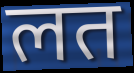
लत